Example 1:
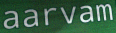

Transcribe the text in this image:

aarvam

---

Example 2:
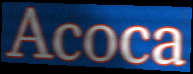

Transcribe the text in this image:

Acoca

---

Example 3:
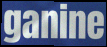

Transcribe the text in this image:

ganine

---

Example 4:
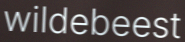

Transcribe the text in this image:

wildebeest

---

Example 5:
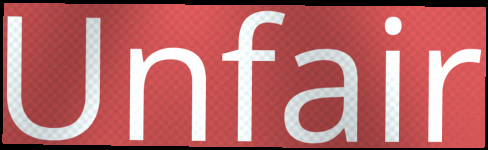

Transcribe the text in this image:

Unfair